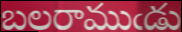
బలరాముఁడు